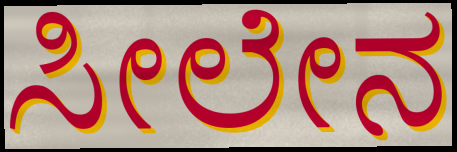
ಸೀಲೇನ